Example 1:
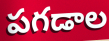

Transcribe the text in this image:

పగడాల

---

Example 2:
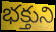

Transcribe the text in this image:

భక్తుని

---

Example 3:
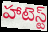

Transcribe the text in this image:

హాటెస్ట్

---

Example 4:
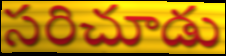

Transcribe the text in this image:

సరిచూడు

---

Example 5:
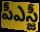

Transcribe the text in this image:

పీఎస్జీ